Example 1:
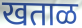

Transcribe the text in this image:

खताळ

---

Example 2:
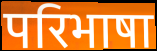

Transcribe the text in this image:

परिभाषा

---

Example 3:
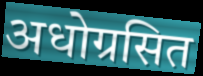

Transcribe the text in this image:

अधोग्रसित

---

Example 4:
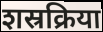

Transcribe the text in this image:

शस्रक्रिया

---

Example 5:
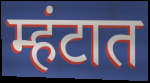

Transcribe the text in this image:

म्हंटात